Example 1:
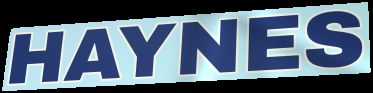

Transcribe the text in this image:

HAYNES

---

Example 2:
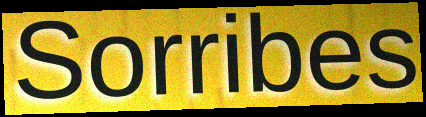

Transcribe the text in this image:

Sorribes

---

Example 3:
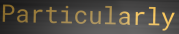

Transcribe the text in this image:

Particularly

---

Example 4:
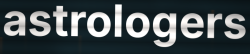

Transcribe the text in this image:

astrologers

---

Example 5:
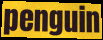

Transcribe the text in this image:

penguin